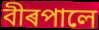
বীৰপালে